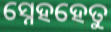
ସ୍ନେହହେତୁ